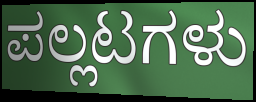
ಪಲ್ಲಟಗಳು